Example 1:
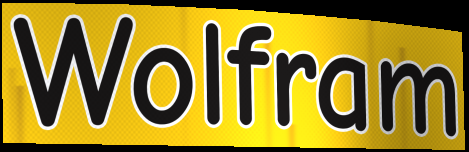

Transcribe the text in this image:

Wolfram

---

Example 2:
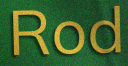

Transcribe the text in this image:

Rod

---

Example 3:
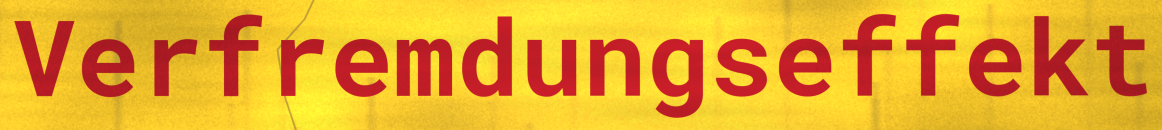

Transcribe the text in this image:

Verfremdungseffekt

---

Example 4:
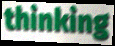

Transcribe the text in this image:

thinking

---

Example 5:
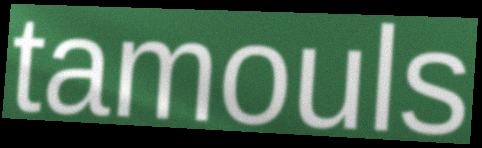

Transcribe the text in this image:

tamouls